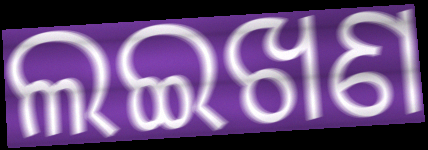
ଲଇଖଣ